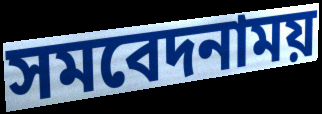
সমবেদনাময়